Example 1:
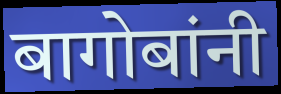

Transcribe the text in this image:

बागोबांनी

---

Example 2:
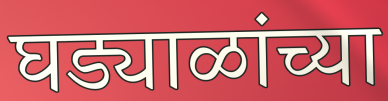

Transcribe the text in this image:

घड्याळांच्या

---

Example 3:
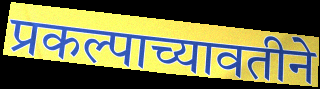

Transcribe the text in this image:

प्रकल्पाच्यावतीने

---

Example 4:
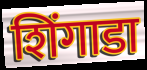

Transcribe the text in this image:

शिंगाडा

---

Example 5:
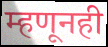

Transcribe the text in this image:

म्‍हणूनही